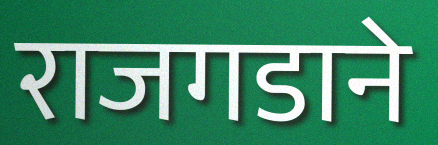
राजगडाने